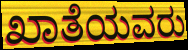
ಖಾತೆಯವರು